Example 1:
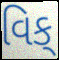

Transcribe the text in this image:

વિક્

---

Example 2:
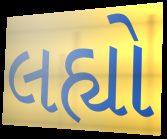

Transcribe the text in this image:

લહ્યો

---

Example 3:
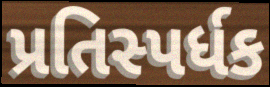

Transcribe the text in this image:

પ્રતિસ્પર્ધક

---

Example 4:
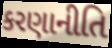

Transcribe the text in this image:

કરણાનીતિ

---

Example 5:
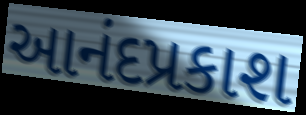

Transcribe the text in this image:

આનંદપ્રકાશ